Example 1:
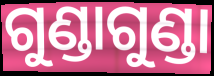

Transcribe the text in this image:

ଗୁଣ୍ଡାଗୁଣ୍ଡା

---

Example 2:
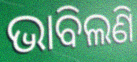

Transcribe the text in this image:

ଭାବିଲଣି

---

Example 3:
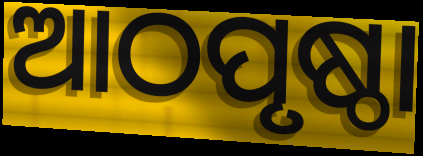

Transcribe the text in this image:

ଆଠପୃଷ୍ଠା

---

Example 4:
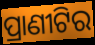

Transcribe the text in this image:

ପ୍ରାଣୀଟିର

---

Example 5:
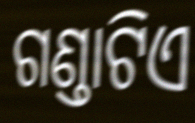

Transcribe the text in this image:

ଗଣ୍ଡାଟିଏ